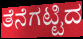
ತೆನೆಗಟ್ಟಿದ